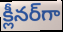
క్లీనర్‌గా